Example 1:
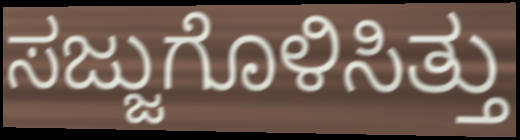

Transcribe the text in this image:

ಸಜ್ಜುಗೊಳಿಸಿತ್ತು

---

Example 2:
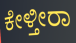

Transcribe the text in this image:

ಕೇಳ್ತೀರಾ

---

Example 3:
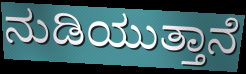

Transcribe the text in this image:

ನುಡಿಯುತ್ತಾನೆ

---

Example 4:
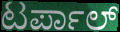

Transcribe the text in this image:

ಟರ್ಪಾಲ್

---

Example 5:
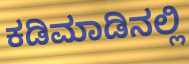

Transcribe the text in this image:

ಕಡಿಮಾಡಿನಲ್ಲಿ